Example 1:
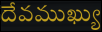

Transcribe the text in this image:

దేవముఖ్యు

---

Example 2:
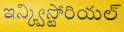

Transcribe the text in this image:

ఇన్క్విస్టోరియల్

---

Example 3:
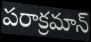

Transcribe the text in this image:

పరాక్రమాన్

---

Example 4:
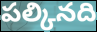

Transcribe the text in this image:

పల్కినది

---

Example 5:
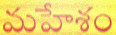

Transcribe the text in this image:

మహేశం